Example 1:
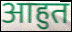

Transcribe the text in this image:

आहुत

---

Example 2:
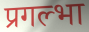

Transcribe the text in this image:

प्रगल्भा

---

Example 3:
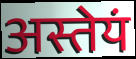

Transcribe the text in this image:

अस्तेयं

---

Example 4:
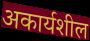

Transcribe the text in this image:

अकार्यशील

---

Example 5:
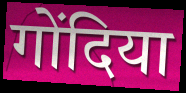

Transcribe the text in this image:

गोंदिया